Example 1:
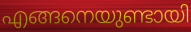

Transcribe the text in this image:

എങ്ങനെയുണ്ടായി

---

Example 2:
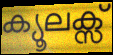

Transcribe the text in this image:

ക്യൂലക്സ്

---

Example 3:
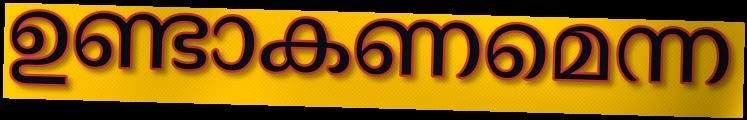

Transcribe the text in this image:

ഉണ്ടാകണമെന്ന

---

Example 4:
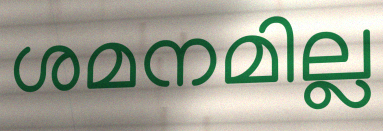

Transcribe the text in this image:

ശമനമില്ല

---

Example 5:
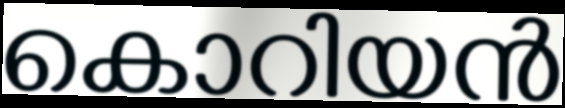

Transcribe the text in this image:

കൊറിയൻ